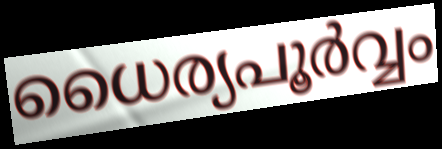
ധൈര്യപൂർവ്വം